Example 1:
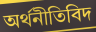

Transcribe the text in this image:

অর্থনীতিবিদ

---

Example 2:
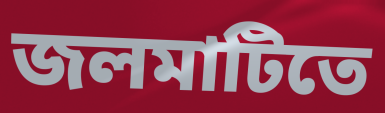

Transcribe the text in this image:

জলমাটিতে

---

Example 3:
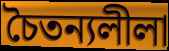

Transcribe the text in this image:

চৈতন্যলীলা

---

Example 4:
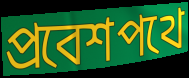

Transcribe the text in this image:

প্রবেশপথে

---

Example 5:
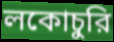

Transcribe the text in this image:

লকোচুরি